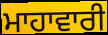
ਮਾਹਾਵਾਰੀ